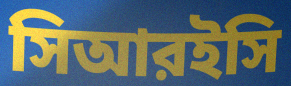
সিআরইসি